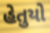
હેતુયો